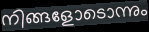
നിങ്ങളോടൊന്നും